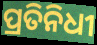
ପ୍ରତିନିଧୀ